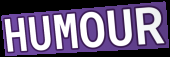
HUMOUR